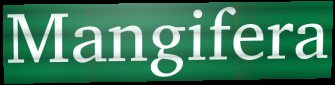
Mangifera